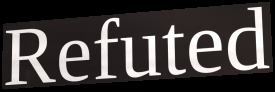
Refuted